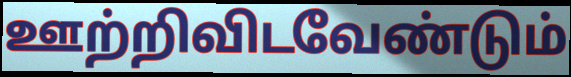
ஊற்றிவிடவேண்டும்